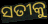
ସତୀକୁ